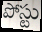
పోస్టు